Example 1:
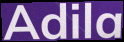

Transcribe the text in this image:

Adila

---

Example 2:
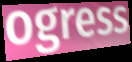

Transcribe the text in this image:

ogress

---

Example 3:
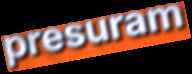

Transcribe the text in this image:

presuram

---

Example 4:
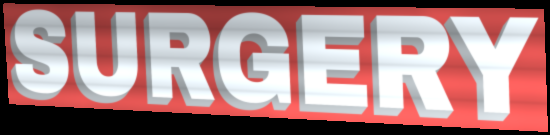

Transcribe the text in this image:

SURGERY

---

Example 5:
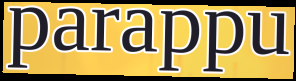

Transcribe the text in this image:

parappu